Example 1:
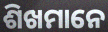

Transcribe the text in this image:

ଶିଖମାନେ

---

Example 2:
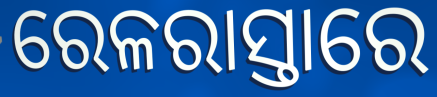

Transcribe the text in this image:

ରେଳରାସ୍ତାରେ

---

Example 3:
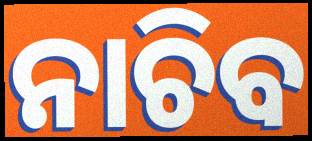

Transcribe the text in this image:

ନାଚିବ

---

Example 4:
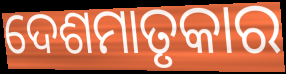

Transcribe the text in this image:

ଦେଶମାତୃକାର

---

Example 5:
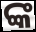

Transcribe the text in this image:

ଙ୍କ